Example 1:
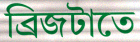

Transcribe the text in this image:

ব্রিজটাতে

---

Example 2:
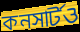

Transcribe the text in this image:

কনসার্টও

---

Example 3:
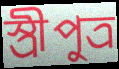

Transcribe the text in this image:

স্ত্রীপুত্র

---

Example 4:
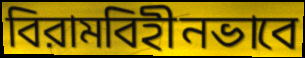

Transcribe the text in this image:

বিরামবিহীনভাবে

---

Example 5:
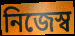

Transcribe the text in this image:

নিজেস্ব